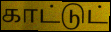
காட்டுட்